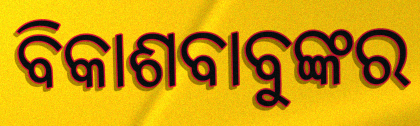
ବିକାଶବାବୁଙ୍କର